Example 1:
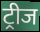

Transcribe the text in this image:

ट्रीज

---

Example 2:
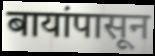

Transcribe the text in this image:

बायांपासून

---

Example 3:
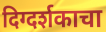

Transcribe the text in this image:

दिग्दर्शकाचा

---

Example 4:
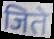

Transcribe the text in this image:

जिते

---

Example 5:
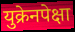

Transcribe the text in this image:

युक्रेनपेक्षा